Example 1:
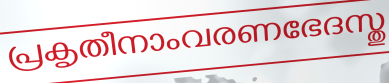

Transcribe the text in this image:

പ്രകൃതീനാംവരണഭേദസ്തു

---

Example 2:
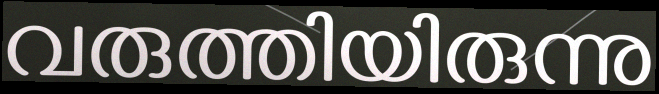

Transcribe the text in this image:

വരുത്തിയിരുന്നു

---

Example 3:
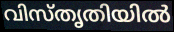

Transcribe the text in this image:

വിസ്തൃതിയിൽ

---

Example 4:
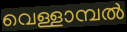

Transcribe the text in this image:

വെള്ളാമ്പൽ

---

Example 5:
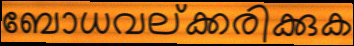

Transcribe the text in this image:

ബോധവല്ക്കരിക്കുക